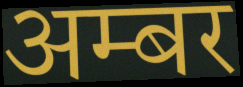
अम्बर